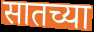
सातच्या